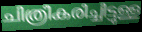
ചിത്രീകരിച്ചിട്ടുള്ള